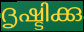
ദൃഷ്ടിക്കു